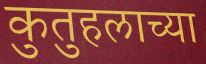
कुतुहलाच्या